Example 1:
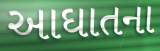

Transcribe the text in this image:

આઘાતના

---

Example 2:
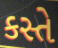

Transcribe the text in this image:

કસ્તે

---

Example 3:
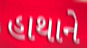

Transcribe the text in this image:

હાથાને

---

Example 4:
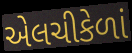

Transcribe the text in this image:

એલચીકેળાં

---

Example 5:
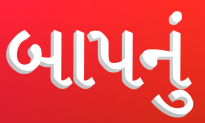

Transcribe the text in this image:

બાપનું